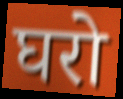
घरो